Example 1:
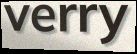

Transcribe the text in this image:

verry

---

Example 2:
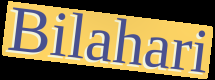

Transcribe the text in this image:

Bilahari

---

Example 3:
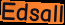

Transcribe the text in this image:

Edsall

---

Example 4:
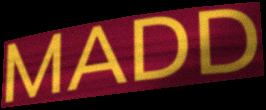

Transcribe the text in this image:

MADD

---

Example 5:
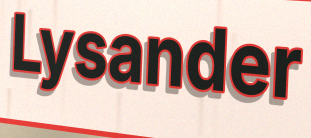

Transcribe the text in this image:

Lysander